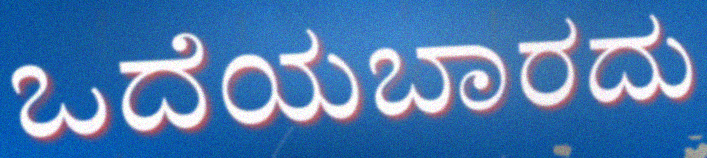
ಒದೆಯಬಾರದು